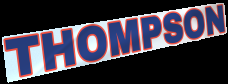
THOMPSON